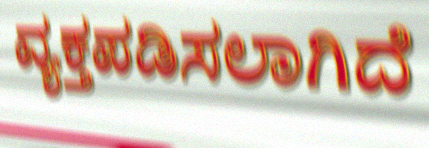
ವ್ಯಕ್ತಪಡಿಸಲಾಗಿದೆ